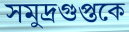
সমুদ্রগুপ্তকে